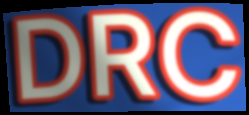
DRC